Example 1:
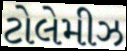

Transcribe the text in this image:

ટોલેમીઝ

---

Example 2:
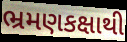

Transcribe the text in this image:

ભ્રમણકક્ષાથી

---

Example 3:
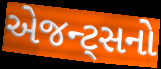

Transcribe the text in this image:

એજન્ટ્સનો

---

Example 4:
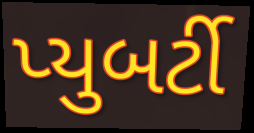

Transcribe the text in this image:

પ્યુબર્ટી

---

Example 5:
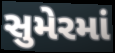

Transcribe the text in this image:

સુમેરમાં